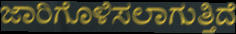
ಜಾರಿಗೊಳಿಸಲಾಗುತ್ತಿದೆ